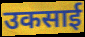
उकसाई